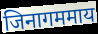
जिनागममाय